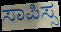
ಸಾಪಿಸ್ಸ